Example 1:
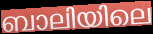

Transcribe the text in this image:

ബാലിയിലെ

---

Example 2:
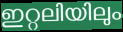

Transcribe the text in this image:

ഇറ്റലിയിലും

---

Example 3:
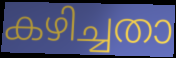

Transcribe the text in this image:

കഴിച്ചതാ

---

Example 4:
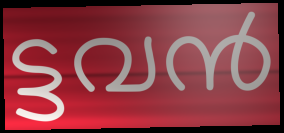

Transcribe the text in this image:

ട്ടവൻ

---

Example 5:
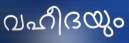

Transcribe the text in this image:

വഹീദയും